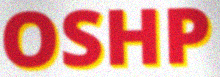
OSHP